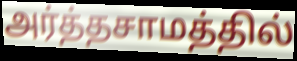
அர்த்தசாமத்தில்